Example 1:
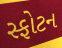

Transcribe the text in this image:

સ્ફોટન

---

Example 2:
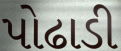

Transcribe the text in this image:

પોઢાડી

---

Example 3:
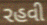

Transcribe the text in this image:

રહવી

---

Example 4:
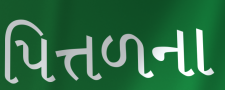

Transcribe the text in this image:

પિત્તળના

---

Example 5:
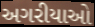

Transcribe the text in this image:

અગરીયાઓ